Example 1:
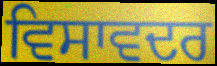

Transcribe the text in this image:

ਵਿਸਾਵਦਰ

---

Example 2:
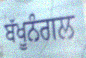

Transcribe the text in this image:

ਬੱਖੂਨੰਗਲ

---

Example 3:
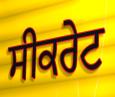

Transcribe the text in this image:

ਸੀਕਰੇਟ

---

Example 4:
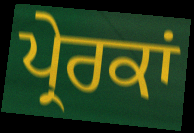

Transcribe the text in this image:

ਪ੍ਰੇਰਕਾਂ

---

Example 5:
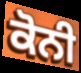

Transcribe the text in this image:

ਕੋਨੀ